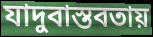
যাদুবাস্তবতায়